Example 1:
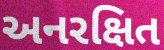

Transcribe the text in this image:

અનરક્ષિત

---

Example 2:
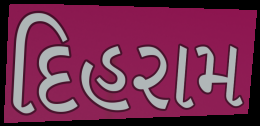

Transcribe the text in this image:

દિહરામ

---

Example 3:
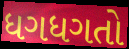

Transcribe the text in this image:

ધગધગતો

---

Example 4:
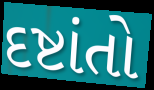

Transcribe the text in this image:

દષ્ટાંતો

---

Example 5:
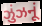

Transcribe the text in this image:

ઝુંઝનૂં